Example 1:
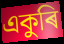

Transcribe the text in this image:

একুৰি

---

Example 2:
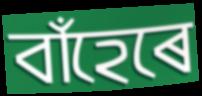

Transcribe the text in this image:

বাঁহেৰে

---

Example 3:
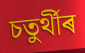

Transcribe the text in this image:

চতুৰ্থীৰ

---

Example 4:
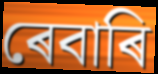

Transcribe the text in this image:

ৰেবাৰি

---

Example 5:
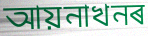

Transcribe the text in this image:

আয়নাখনৰ